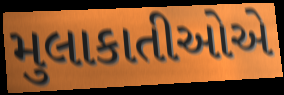
મુલાકાતીઓએ